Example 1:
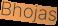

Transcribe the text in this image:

Bhojas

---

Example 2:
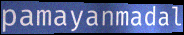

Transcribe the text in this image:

pamayanmadal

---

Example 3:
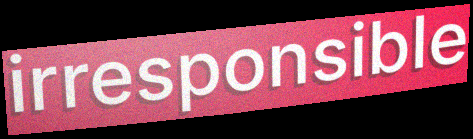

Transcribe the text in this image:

irresponsible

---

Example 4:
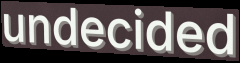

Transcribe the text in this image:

undecided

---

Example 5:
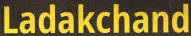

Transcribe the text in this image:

Ladakchand